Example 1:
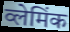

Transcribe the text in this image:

व्लेमिंक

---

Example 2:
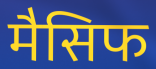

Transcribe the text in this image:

मैसिफ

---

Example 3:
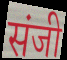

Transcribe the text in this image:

संजी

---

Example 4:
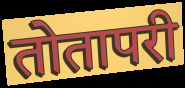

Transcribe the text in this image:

तोतापरी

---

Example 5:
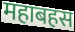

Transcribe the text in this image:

महाबहस